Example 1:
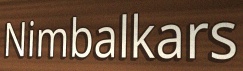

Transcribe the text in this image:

Nimbalkars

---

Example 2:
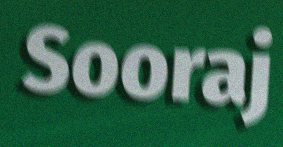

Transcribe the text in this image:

Sooraj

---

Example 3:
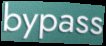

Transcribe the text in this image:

bypass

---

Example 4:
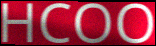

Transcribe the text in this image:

HCOO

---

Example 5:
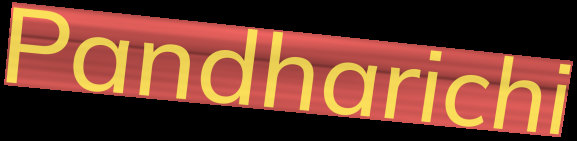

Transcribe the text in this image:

Pandharichi